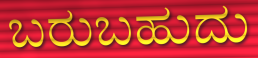
ಬರುಬಹುದು